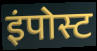
इंपोस्ट